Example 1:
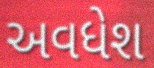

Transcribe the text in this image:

અવધેશ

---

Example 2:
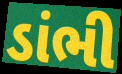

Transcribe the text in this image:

ડાંભી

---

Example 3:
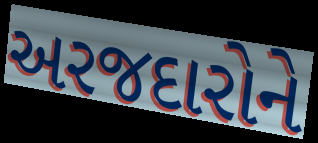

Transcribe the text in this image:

અરજદારોને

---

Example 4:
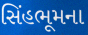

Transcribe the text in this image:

સિંહભૂમના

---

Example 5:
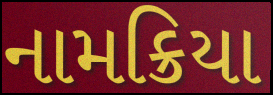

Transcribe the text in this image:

નામક્રિયા